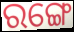
ରଙ୍ଗେ